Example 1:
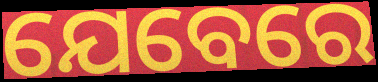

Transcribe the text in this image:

ଯେବେରେ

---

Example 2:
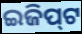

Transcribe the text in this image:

ଇଜିପ୍‍ଟ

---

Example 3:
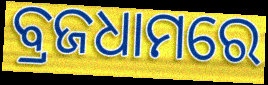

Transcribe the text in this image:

ବ୍ରଜଧାମରେ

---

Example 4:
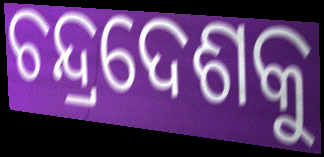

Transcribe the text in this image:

ଚନ୍ଦ୍ରଦେଶକୁ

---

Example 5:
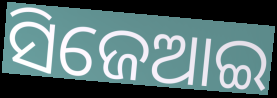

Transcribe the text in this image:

ସିଜେଆଇ